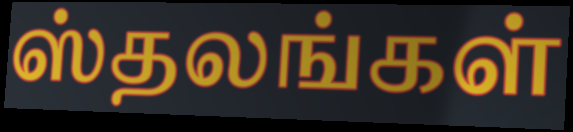
ஸ்தலங்கள்